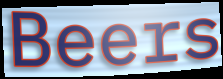
Beers